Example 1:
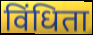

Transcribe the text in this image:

विंधिता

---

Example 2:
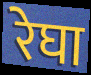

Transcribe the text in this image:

रेघा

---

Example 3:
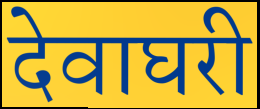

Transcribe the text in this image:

देवाघरी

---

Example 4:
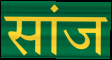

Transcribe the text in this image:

सांज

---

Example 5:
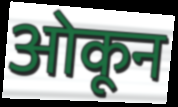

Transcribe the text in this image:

ओकून